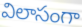
విలాసంగా